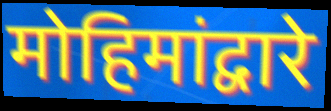
मोहिमांद्वारे